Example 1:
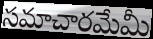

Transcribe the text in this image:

సమాచారమేమీ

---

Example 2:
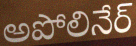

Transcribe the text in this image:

అపోలినేర్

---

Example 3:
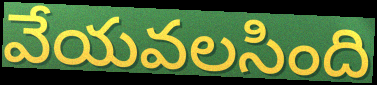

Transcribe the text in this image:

వేయవలసింది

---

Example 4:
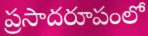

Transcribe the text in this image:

ప్రసాదరూపంలో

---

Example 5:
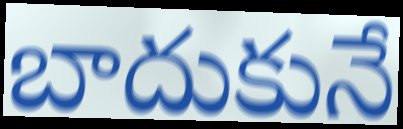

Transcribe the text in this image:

బాదుకునే